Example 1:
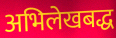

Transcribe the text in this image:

अभिलेखबद्ध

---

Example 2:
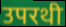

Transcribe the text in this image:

उपरथी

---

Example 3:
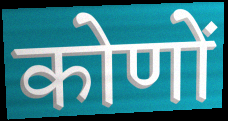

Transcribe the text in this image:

कोणों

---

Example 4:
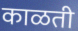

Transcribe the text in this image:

काळती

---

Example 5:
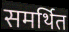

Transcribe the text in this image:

समर्थित